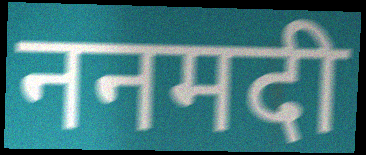
ननमदी